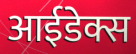
आईडेक्स